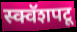
स्क्वॅशपटू